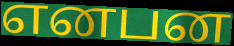
எனபன